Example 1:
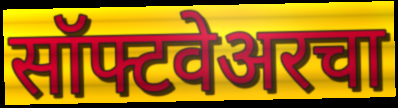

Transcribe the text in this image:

सॉफ्टवेअरचा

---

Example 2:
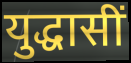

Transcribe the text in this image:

युद्धासीं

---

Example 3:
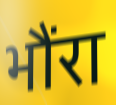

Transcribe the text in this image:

भौंरा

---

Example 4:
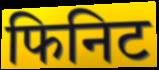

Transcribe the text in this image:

फिनिट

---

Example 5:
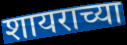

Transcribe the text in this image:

शायराच्या